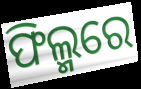
ଫିଲ୍ମରେ